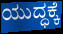
ಯುದ್ಧಕ್ಕೆ